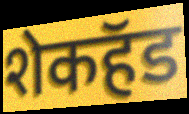
शेकहॅड